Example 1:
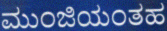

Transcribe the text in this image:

ಮುಂಜಿಯಂತಹ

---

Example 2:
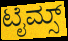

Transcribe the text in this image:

ಟೈಮ್ಸ್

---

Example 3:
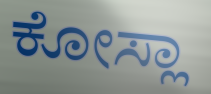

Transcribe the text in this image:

ಕೋಸ್ಲಾ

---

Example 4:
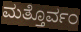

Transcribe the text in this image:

ಮತ್ತೊರ್ವಂ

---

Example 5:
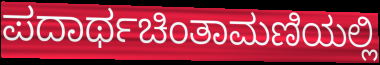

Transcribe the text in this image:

ಪದಾರ್ಥಚಿಂತಾಮಣಿಯಲ್ಲಿ